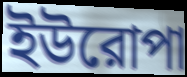
ইউরোপা